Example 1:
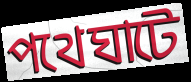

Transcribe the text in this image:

পথেঘাটে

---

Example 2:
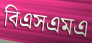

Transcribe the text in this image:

বিএসএমএ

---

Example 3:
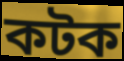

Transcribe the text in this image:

কটক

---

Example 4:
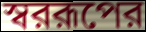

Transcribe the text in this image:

স্বররূপের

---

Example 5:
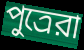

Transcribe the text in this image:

পুত্রেরা